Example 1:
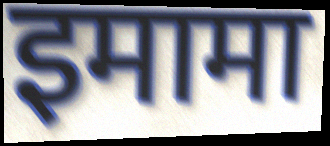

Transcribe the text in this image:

इमामा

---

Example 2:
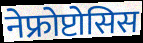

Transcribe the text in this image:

नेफ्रोप्टोसिस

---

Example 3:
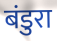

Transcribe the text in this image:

बंडुरा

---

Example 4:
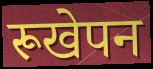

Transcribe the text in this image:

रूखेपन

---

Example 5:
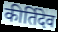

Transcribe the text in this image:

कीर्तिदेव